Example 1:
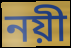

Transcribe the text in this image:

নয়ী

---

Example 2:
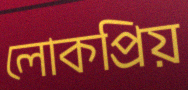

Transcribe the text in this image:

লোকপ্ৰিয়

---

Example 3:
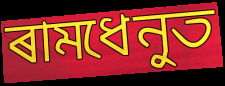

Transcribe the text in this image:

ৰামধেনুত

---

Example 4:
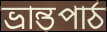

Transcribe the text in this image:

ভ্ৰান্তপাঠ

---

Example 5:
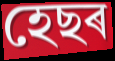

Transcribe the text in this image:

হেছৰ